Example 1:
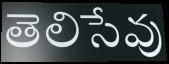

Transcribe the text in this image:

తెలిసేవు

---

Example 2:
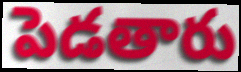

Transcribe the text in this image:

పెడతారు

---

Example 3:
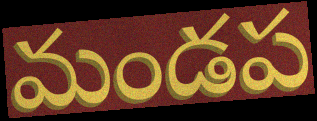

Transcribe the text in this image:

మండప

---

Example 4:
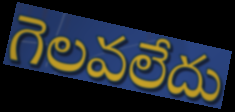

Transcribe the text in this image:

గెలవలేదు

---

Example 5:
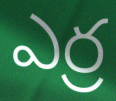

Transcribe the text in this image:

ఎర్ర